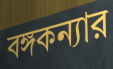
বঙ্গকন্যার